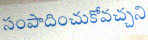
సంపాదించుకోవచ్చని